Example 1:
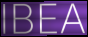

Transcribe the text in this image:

IBEA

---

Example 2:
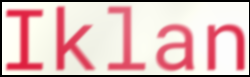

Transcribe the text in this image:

Iklan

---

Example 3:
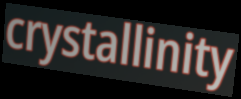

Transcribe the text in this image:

crystallinity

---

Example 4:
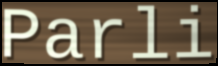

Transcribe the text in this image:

Parli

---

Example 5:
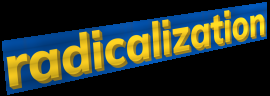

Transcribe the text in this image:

radicalization